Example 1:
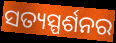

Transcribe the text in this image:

ସତ୍ୟସ୍ପର୍ଶନର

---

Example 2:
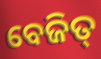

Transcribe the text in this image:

ବେଜିତ୍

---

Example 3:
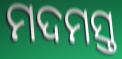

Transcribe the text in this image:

ମଦମସ୍ତ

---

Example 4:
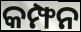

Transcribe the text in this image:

କମ୍ଫନ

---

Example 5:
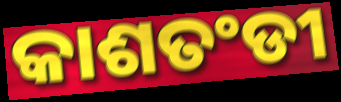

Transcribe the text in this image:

କାଶତଂଡୀ